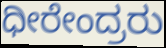
ಧೀರೇಂದ್ರರು